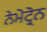
ਨੇਮੋਟ੍ਰੋਨ